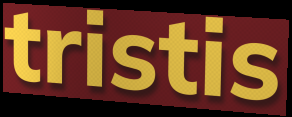
tristis